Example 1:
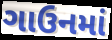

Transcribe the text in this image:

ગાઉનમાં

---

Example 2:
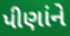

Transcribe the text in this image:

પીણાંને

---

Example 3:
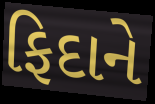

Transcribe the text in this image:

ફિદાને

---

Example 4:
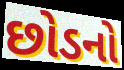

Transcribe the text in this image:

છોડનો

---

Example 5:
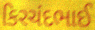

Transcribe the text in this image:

કિરચંદભાઈ